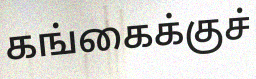
கங்கைக்குச்